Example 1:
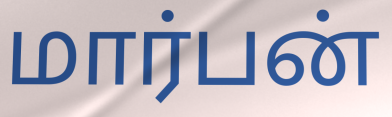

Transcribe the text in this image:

மார்பன்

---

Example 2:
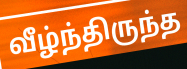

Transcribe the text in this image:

வீழ்ந்திருந்த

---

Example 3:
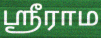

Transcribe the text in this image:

ஸ்ரீராம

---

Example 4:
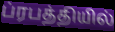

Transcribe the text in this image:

ப்ரபத்தியில்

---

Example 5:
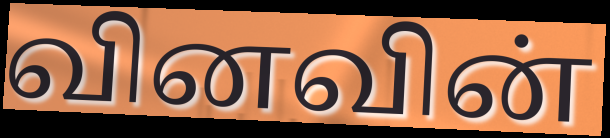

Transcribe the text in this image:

வினவின்